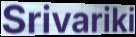
Srivariki